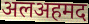
अलअहमद